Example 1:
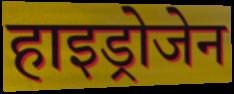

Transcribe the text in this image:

हाइड्रोजेन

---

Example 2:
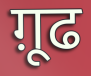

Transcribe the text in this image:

ग़ूढ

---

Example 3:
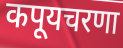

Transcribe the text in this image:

कपूयचरणा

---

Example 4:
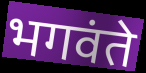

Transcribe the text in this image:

भगवंते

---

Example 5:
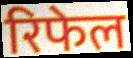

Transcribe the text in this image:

रिफेल